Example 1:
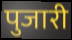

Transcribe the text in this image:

पुजारी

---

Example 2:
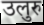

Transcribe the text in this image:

उलुरु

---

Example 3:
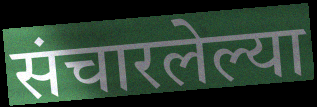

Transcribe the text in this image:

संचारलेल्या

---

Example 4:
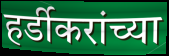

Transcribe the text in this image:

हर्डीकरांच्या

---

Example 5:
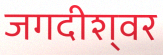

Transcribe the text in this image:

जगदीश्वर